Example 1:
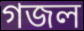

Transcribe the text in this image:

গজল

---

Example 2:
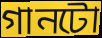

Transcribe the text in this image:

গানটো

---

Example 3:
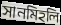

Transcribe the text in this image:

সানমিহলি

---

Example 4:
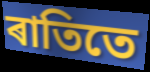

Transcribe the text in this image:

ৰাতিতে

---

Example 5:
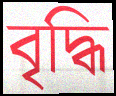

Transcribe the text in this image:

বৃদ্ধি